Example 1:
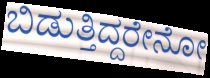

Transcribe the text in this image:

ಬಿಡುತ್ತಿದ್ದರೇನೋ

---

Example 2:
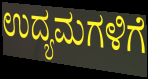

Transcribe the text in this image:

ಉದ್ಯಮಗಳಿಗೆ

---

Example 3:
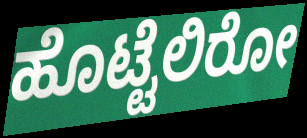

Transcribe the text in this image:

ಹೊಟ್ಟೆಲಿರೋ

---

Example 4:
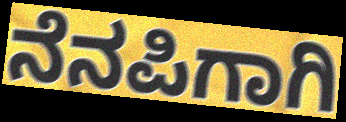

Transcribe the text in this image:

ನೆನಪಿಗಾಗಿ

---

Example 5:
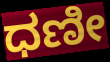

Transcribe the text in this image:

ಧಣೀ